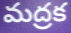
మద్రక